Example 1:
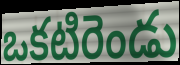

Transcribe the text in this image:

ఒకటిరెండు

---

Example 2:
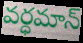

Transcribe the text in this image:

వర్ధమాన్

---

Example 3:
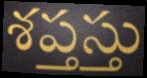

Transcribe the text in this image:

శప్తస్తు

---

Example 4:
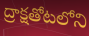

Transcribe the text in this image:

ద్రాక్షతోటలోని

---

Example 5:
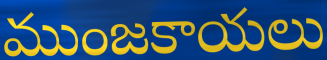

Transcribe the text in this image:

ముంజకాయలు